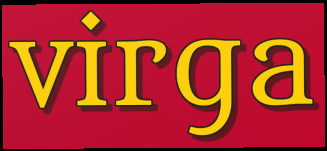
virga